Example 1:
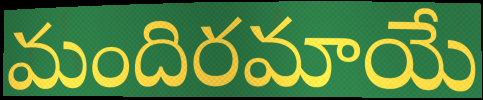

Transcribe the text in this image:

మందిరమాయే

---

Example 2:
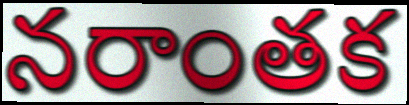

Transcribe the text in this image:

నరాంతక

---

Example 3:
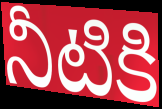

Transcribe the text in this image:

నీటికి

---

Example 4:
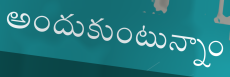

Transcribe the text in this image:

అందుకుంటున్నాం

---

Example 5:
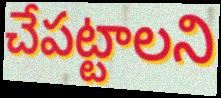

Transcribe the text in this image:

చేపట్టాలని